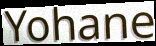
Yohane